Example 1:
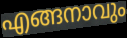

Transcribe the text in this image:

എങ്ങനാവും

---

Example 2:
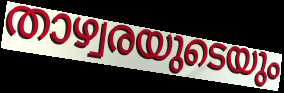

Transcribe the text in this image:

താഴ്വരയുടെയും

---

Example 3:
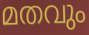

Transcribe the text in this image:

മതവും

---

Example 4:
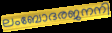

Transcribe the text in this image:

ലംബോദരജനനി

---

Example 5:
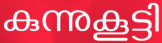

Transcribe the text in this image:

കുന്നുകൂട്ടി